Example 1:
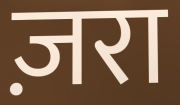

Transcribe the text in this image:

ज़रा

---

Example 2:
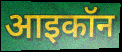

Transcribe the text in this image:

आइकॉन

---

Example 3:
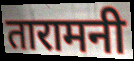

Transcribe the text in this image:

तारामनी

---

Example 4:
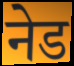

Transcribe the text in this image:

नेड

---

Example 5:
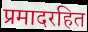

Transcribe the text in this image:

प्रमादरहित